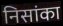
निसांका